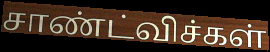
சாண்ட்விச்கள்